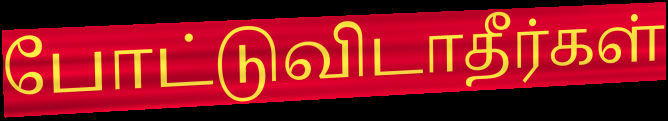
போட்டுவிடாதீர்கள்